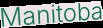
Manitoba